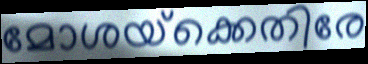
മോശയ്‌ക്കെതിരേ